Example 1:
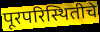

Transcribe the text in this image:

पूरपरिस्थितीचे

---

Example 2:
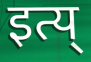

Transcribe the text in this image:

इत्य्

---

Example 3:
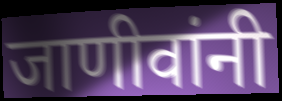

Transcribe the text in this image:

जाणीवांनी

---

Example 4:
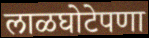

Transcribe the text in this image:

लाळघोटेपणा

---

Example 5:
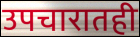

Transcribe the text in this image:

उपचारातही